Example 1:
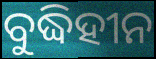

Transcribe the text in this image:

ବୁଦ୍ଧିହୀନ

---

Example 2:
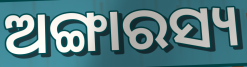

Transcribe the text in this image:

ଅଙ୍ଗାରସ୍ୟ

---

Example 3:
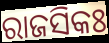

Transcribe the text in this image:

ରାଜସିକଃ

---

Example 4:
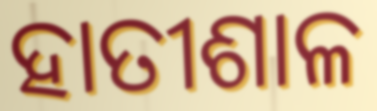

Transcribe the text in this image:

ହାତୀଶାଳ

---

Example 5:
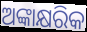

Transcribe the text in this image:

ଅଙ୍କାକ୍ଷରିକ